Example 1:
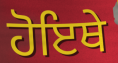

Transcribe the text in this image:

ਹੋਇਥੇ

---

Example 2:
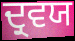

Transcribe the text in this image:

ਦ੍ਰਵਯ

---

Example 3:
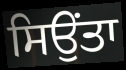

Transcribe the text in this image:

ਸਿਉਂਤਾ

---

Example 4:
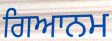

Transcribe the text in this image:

ਗਿਆਨਮ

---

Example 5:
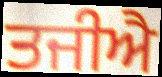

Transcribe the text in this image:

ਤਜੀਐ